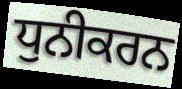
ਧੁਨੀਕਰਨ